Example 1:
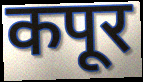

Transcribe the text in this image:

कपूर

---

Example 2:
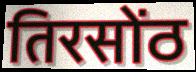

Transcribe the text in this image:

तिरसोंठ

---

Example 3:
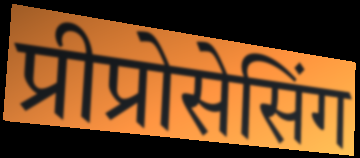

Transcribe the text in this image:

प्रीप्रोसेसिंग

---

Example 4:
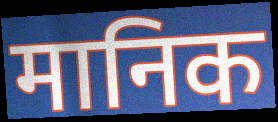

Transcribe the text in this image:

मानिक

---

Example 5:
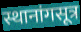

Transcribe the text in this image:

स्थानांगसूत्र